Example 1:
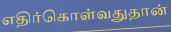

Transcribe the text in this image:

எதிர்கொள்வதுதான்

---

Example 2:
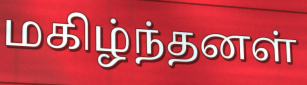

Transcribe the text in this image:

மகிழ்ந்தனள்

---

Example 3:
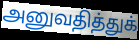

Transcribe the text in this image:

அனுவதித்துக்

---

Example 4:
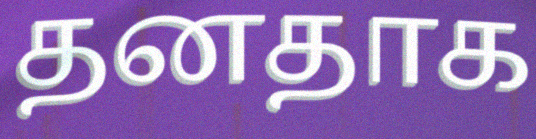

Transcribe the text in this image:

தனதாக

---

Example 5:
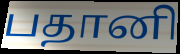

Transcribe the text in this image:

பதானி